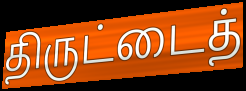
திருட்டைத்